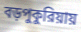
বড়পুকুরিয়ায়